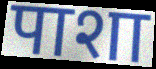
पाशा